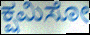
ಕ್ಷಮಿಸೋ